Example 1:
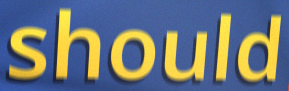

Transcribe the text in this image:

should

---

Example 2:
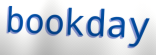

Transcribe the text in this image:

bookday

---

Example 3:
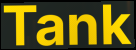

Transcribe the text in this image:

Tank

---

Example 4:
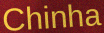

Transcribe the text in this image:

Chinha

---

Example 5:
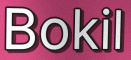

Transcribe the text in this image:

Bokil